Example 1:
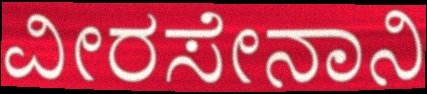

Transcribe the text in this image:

ವೀರಸೇನಾನಿ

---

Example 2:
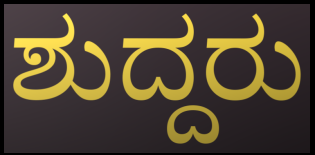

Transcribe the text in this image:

ಶುದ್ದರು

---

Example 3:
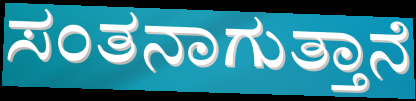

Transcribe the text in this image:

ಸಂತನಾಗುತ್ತಾನೆ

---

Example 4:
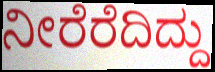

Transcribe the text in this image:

ನೀರೆರೆದಿದ್ದು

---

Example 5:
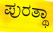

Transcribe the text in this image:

ಪುರತ್ಥಾ